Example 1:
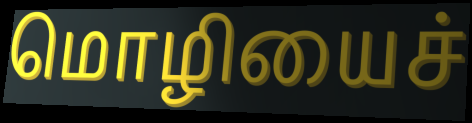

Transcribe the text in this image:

மொழியைச்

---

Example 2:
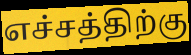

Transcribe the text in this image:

எச்சத்திற்கு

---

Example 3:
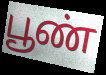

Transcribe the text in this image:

பூண்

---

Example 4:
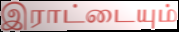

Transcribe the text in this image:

இராட்டையும்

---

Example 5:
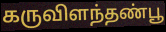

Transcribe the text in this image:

கருவிளந்தண்பூ